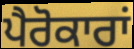
ਪੈਰੋਕਾਰਾਂ